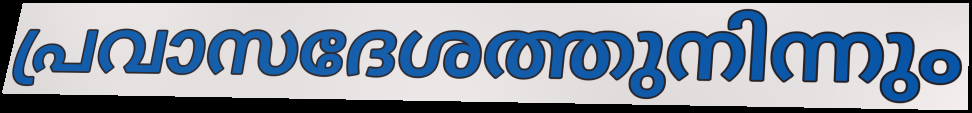
പ്രവാസദേശത്തുനിന്നും